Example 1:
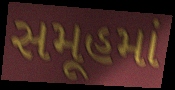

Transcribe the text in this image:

સમૂહમાં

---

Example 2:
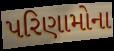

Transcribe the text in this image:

પરિણામોના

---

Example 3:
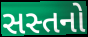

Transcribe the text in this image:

સસ્તનો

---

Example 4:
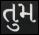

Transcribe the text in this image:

તુમ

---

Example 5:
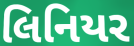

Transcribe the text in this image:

લિનિયર